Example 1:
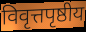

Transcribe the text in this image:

विवृत्तपृष्ठीय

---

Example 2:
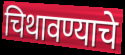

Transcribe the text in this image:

चिथावण्याचे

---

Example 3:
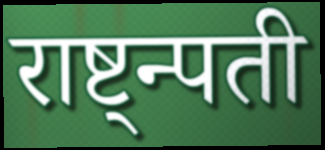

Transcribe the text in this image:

राष्ट्न्पती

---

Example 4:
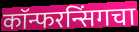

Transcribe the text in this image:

कॉन्फरन्सिंगचा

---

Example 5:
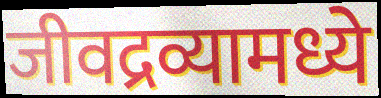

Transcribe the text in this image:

जीवद्रव्यामध्ये